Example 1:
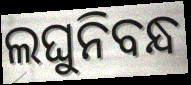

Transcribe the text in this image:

ଲଘୁନିବନ୍ଧ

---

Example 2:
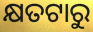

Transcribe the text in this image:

କ୍ଷତଟାରୁ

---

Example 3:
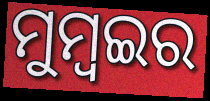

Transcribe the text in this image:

ମୁମ୍ବଇର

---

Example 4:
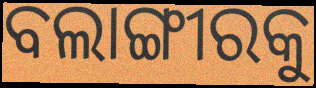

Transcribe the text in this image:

ବଲାଙ୍ଗୀରକୁ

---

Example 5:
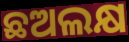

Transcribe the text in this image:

ଛଅଲକ୍ଷ